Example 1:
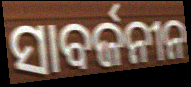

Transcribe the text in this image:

ସାବର୍ଜନୀନ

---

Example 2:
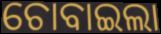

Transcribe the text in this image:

ଚୋବାଇଲା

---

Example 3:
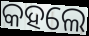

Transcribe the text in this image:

କହଲେ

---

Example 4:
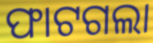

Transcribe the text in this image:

ଫାଟଗଲା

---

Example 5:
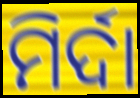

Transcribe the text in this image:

ମିର୍ଦା